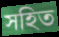
সহিত